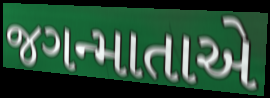
જગન્માતાએ